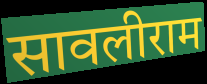
सावलीराम